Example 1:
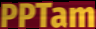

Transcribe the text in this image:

PPTam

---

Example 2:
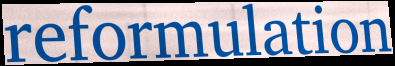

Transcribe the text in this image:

reformulation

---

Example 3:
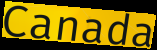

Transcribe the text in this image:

Canada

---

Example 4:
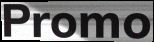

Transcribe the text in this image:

Promo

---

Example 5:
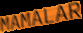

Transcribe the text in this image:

MAMALAR